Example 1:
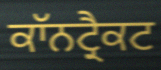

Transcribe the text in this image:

ਕਾੱਨਟ੍ਰੈਕਟ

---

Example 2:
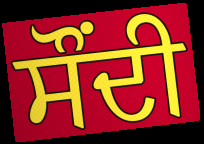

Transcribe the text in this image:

ਸੌਂਦੀ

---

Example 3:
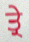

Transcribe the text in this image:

ਤ੍ਰੇ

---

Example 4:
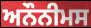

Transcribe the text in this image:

ਅਨੌਨੀਮਸ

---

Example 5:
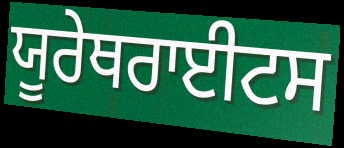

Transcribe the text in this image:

ਯੂਰੇਥਰਾਈਟਸ